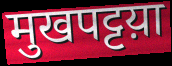
मुखपट्टय़ा